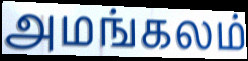
அமங்கலம்